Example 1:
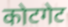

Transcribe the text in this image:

कोटगेट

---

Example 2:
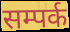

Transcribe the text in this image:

सम्पर्क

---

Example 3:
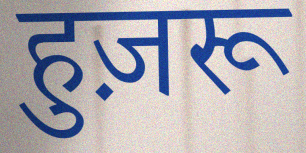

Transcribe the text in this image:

हुज़रू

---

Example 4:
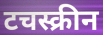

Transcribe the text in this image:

टचस्क्रीन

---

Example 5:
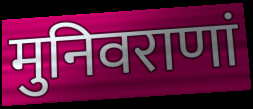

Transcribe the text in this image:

मुनिवराणां